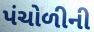
પંચોળીની